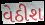
વેઠીશ